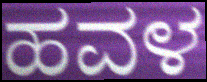
ಹವಳ